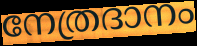
നേത്രദാനം